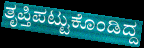
ತೃಪ್ತಿಪಟ್ಟುಕೊಂಡಿದ್ದ